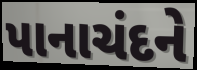
પાનાચંદને